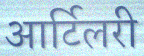
आर्टिलरी